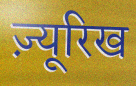
ज़्यूरिख